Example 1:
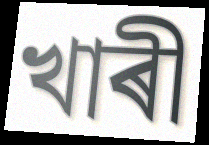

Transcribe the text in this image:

খাৰী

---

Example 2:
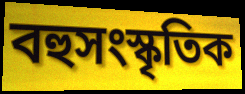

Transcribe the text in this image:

বহুসংস্কৃতিক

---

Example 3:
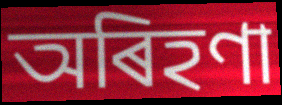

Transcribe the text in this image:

অৰিহণা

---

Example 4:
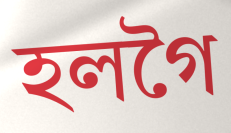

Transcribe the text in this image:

হলগৈ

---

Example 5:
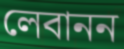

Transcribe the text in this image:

লেবানন